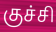
குச்சி